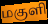
மகுளி